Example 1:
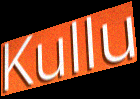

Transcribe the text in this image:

Kullu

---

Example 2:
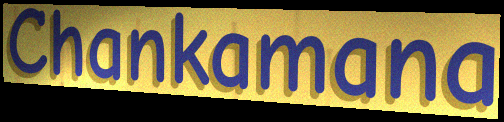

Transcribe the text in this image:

Chankamana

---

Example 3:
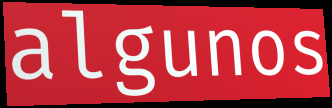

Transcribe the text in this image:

algunos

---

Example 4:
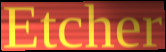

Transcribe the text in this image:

Etcher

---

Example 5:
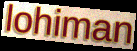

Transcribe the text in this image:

lohiman